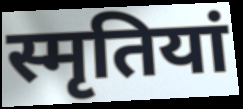
स्मृतियां